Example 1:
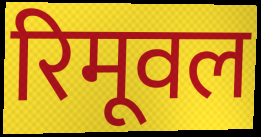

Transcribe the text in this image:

रिमूवल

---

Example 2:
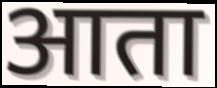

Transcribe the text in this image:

आता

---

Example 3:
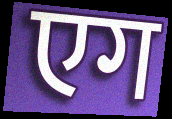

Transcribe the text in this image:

एग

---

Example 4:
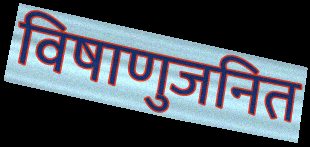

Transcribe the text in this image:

विषाणुजनित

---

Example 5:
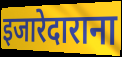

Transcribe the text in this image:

इजारेदाराना